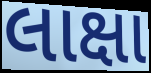
લાક્ષા